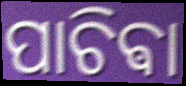
ପାଚିଵା